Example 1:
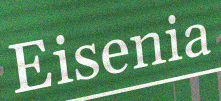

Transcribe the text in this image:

Eisenia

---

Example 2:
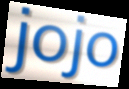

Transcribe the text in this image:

jojo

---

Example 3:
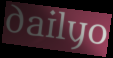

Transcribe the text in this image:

dailyo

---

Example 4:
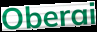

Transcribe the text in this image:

Oberai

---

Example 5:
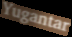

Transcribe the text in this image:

Yugantar